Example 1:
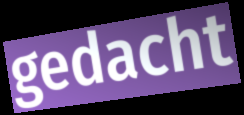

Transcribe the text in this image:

gedacht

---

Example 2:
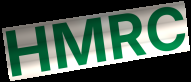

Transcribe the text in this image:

HMRC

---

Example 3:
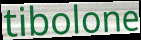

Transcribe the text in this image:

tibolone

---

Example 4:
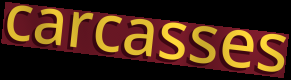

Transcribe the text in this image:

carcasses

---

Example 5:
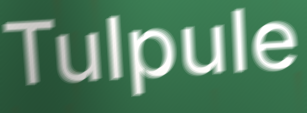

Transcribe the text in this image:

Tulpule